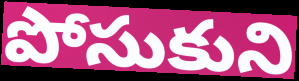
పోసుకుని